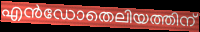
എൻഡോതെലിയത്തിന്